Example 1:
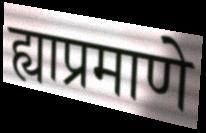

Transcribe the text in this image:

ह्याप्रमाणे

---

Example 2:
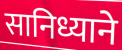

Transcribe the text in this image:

सानिध्याने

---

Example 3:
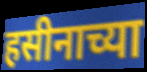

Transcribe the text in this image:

हसीनाच्या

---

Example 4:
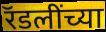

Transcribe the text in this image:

रॅडलींच्या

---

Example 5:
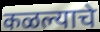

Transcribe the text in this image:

कळल्याचे